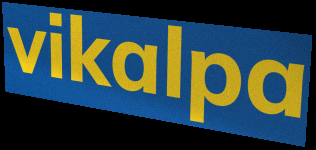
vikalpa